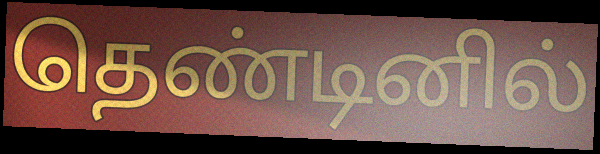
தெண்டினில்